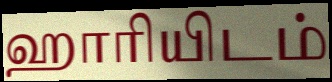
ஹாரியிடம்